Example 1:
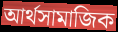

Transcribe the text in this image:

আৰ্থসামাজিক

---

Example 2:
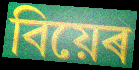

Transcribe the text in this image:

বিয়েৰ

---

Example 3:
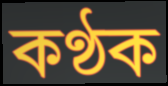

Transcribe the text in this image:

কণ্ঠক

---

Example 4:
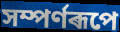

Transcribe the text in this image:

সম্পৰ্ণৰূপে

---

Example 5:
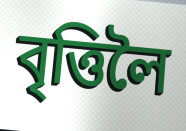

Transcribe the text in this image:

বৃত্তিলৈ